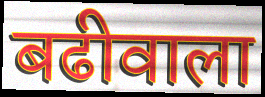
बढीवाला